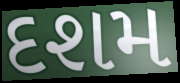
દશમ